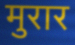
मुरार